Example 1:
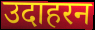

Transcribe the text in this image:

उदाहरन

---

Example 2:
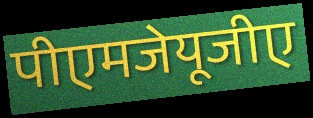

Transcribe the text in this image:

पीएमजेयूजीए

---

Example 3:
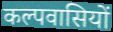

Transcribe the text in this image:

कल्पवासियों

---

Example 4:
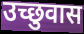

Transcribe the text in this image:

उच्छुवास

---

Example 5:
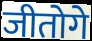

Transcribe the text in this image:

जीतोगे